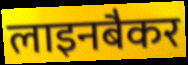
लाइनबैकर